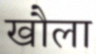
खौला